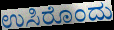
ಉಸಿರೊಂದು